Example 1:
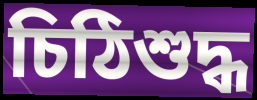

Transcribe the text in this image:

চিঠিশুদ্ধ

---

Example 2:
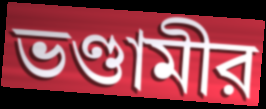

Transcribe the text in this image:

ভণ্ডামীর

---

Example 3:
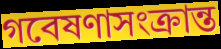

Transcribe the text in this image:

গবেষণাসংক্রান্ত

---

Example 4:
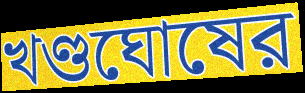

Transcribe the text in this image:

খণ্ডঘোষের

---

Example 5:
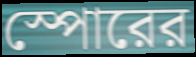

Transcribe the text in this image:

স্পোরের